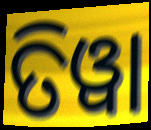
ତିୱା